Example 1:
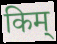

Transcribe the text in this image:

किम्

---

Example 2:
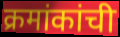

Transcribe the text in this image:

क्रमांकांची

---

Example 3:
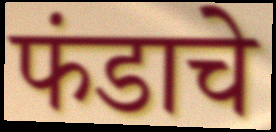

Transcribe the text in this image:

फंडाचे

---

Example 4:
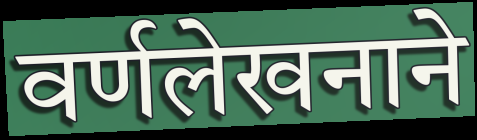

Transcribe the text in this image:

वर्णलेखनाने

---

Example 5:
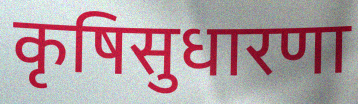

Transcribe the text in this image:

कृषिसुधारणा